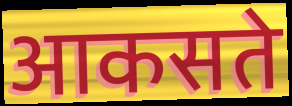
आकसते